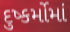
દુષ્કર્મોમાં